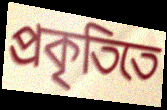
প্রকৃতিতে